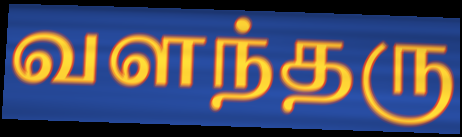
வளந்தரு